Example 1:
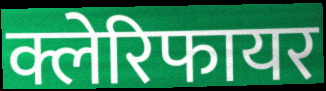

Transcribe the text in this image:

क्लेरिफायर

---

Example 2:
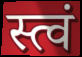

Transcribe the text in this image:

स्त्वं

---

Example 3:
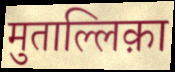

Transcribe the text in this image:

मुताल्लिक़ा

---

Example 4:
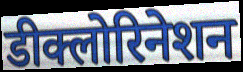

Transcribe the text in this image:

डीक्लोरिनेशन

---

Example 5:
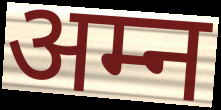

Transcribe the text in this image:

अम्न